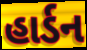
હાર્ડન